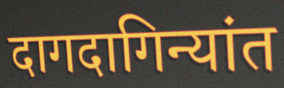
दागदागिन्यांत